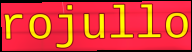
rojullo